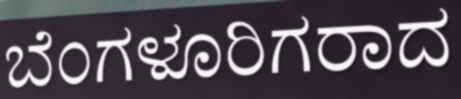
ಬೆಂಗಳೂರಿಗರಾದ